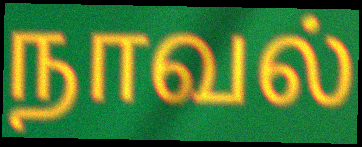
நாவல்